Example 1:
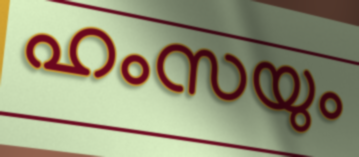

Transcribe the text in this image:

ഹംസയും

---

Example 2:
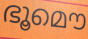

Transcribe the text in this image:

ഭൂമൌ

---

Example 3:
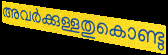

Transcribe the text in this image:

അവർക്കുള്ളതുകൊണ്ടു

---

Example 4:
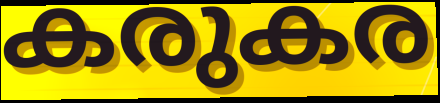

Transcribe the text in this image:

കരുകര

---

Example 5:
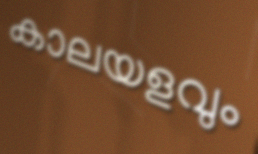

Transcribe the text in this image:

കാലയളവും